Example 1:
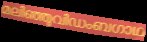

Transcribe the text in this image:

മലിഞ്ഞുവിഡംബഗാഥ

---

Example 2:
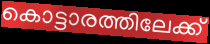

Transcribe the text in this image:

കൊട്ടാരത്തിലേക്ക്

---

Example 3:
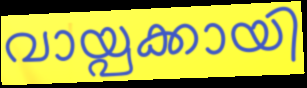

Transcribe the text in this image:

വായ്പക്കായി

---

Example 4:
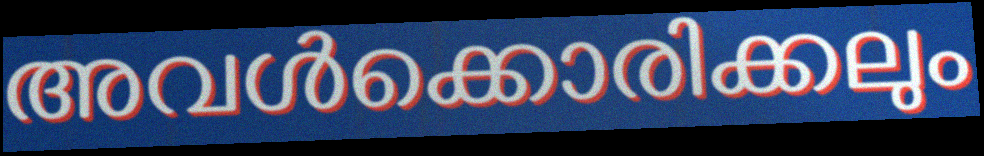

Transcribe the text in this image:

അവൾക്കൊരിക്കലും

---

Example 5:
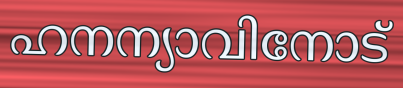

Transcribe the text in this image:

ഹനന്യാവിനോട്